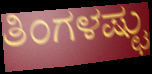
ತಿಂಗಳಷ್ಟು